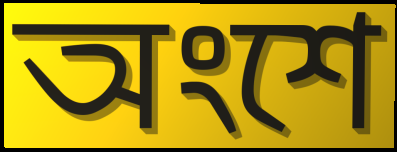
অংশে